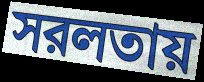
সরলতায়